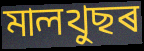
মালথুছৰ